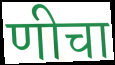
णीचा